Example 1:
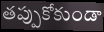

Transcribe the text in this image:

తప్పుకోకుండా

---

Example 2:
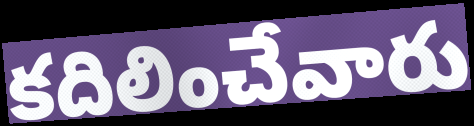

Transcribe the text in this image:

కదిలించేవారు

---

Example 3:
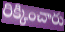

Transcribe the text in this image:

రిక్కించారు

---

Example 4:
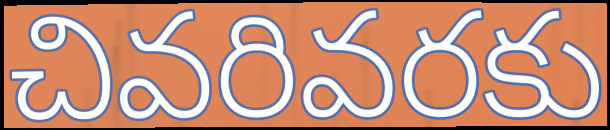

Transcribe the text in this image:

చివరివరకు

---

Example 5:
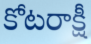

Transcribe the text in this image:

కోటరాక్షీ